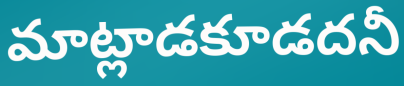
మాట్లాడకూడదనీ